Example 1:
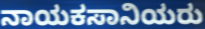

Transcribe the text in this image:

ನಾಯಕಸಾನಿಯರು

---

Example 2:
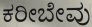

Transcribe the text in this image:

ಕರೀಬೇವು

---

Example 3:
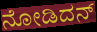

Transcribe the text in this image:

ನೋಡಿದನ್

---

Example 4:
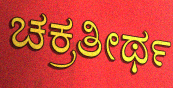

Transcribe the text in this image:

ಚಕ್ರತೀರ್ಥ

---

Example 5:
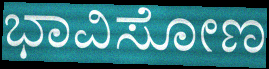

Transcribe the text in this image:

ಭಾವಿಸೋಣ